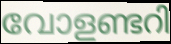
വോളണ്ടറി